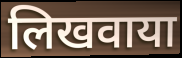
लिखवाया